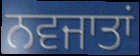
ਨਵਜਾਤਾਂ